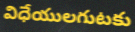
విధేయులగుటకు